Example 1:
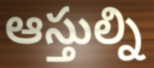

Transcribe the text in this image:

ఆస్తుల్ని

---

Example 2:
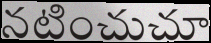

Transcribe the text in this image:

నటించుచూ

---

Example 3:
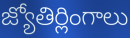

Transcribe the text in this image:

జ్యోతిర్లింగాలు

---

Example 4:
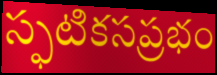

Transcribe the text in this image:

స్ఫటికసప్రభం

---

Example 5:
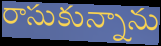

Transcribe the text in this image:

రాసుకున్నాను